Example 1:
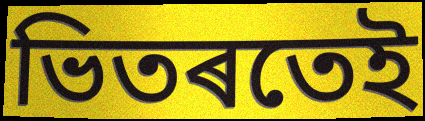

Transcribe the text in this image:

ভিতৰতেই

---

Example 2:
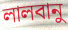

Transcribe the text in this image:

লালবানু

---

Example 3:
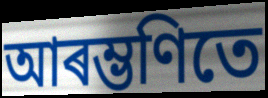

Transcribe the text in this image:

আৰম্ভণিতে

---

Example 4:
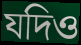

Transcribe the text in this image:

যদিও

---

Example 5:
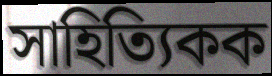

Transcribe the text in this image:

সাহিত্যিকক